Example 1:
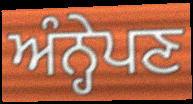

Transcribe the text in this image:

ਅੰਨ੍ਹੇਪਣ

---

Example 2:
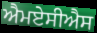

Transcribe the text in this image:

ਐਮਏਸੀਐਸ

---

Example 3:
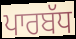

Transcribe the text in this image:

ਪਾਰਬੱਧ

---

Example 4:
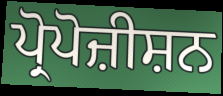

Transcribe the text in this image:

ਪ੍ਰੋਪੋਜ਼ੀਸ਼ਨ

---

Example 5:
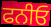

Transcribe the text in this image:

ਫਨੀਓ